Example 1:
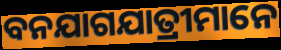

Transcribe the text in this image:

ବନଯାଗଯାତ୍ରୀମାନେ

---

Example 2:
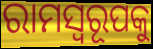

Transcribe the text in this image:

ରାମସ୍ୱରୂପକୁ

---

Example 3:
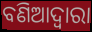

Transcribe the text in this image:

ବଣିଆଦ୍ୱାରା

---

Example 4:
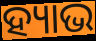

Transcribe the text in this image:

ହ୍ୟାଭ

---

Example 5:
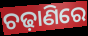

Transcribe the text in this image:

ଚଢ଼ାଣିରେ